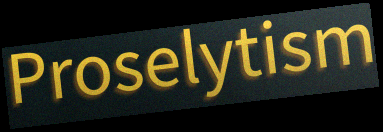
Proselytism